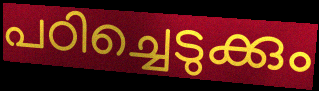
പഠിച്ചെടുക്കും